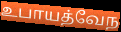
உபாயத்வேந